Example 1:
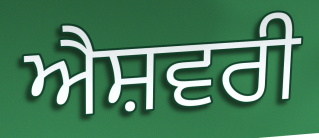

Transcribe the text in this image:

ਐਸ਼ਵਰੀ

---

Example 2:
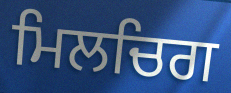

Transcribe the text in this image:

ਮਿਲਚਿਗ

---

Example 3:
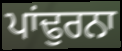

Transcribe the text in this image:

ਪਾਂਢੁਰਨਾ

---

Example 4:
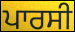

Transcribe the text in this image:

ਪਾਰਸੀ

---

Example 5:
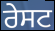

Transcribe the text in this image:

ਰੇਸਟ